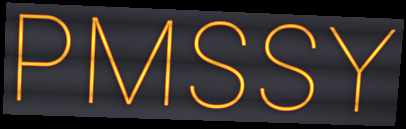
PMSSY